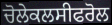
ਚੋਲੇਕਲਸੀਫਰੋਲ